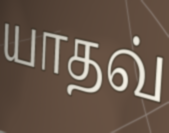
யாதவ்